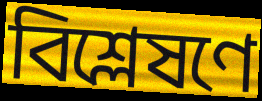
বিশ্লেষণে